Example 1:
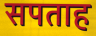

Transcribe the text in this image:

सपताह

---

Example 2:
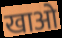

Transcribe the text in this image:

खाओ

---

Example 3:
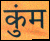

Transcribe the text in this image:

कुंम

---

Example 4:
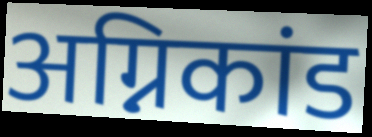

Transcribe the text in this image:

अग्निकांड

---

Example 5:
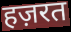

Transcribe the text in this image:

हज़रत